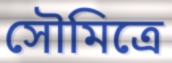
সৌমিত্রে